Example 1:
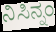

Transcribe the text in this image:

ನಿಸಿನ್ನಂ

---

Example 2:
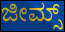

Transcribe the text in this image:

ಜೀಮ್ಸ್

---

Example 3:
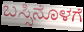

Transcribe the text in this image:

ಬಸ್ಸಿನೊಳಗೆ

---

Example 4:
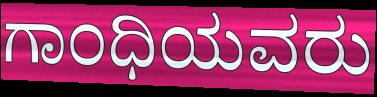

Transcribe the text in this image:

ಗಾಂಧಿಯವರು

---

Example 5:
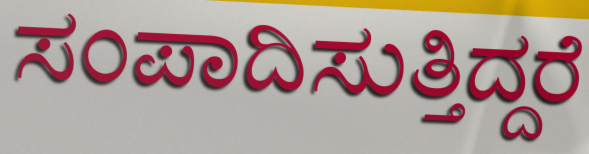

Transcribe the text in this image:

ಸಂಪಾದಿಸುತ್ತಿದ್ದರೆ